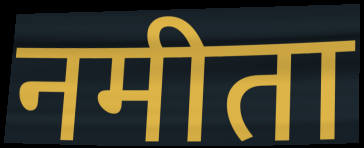
नमीता